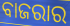
ବାଜରାର